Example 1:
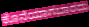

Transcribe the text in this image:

ಕೊನೆಯಾಗಬಾರದು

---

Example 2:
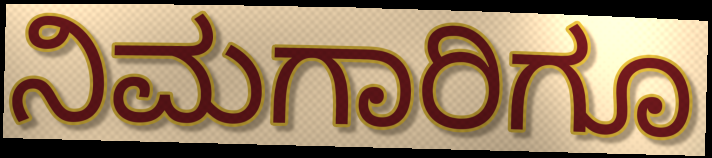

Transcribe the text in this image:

ನಿಮಗಾರಿಗೂ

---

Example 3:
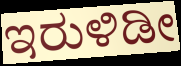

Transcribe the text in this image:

ಇರುಳಿಡೀ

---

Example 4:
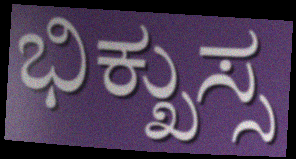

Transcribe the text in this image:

ಭಿಕ್ಖುಸ್ಸ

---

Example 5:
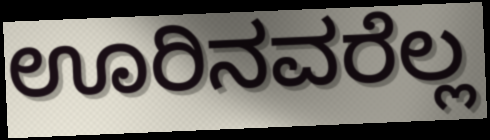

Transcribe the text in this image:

ಊರಿನವರೆಲ್ಲ